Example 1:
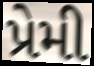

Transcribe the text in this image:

પ્રેમી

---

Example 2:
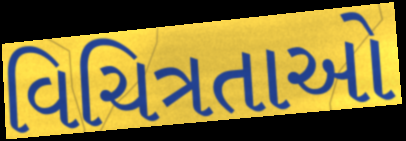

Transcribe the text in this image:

વિચિત્રતાઓ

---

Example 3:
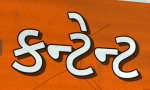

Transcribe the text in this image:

કન્ટેન્ટ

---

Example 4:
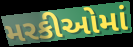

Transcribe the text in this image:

મરકીઓમાં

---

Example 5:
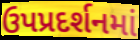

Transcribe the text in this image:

ઉપપ્રદર્શનમાં